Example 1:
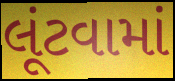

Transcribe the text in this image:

લૂંટવામાં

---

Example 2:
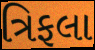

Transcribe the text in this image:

ત્રિફલા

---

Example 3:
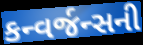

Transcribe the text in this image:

કન્વર્જન્સની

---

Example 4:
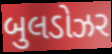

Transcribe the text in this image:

બુલડોઝર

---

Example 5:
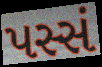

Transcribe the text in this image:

પસ્સં